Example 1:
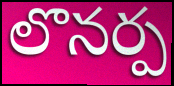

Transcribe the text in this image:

లొనర్ప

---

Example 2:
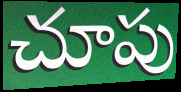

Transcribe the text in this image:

చూపు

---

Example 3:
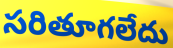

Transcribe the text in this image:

సరితూగలేదు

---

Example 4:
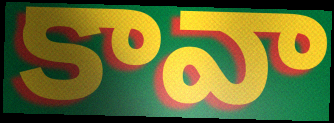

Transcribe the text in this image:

కావా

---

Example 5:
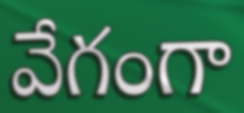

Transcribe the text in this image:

వేగంగా